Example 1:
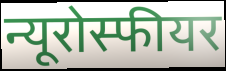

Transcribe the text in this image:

न्यूरोस्फीयर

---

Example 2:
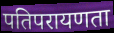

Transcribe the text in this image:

पतिपरायणता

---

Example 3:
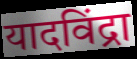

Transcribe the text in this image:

यादविंद्रा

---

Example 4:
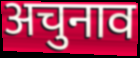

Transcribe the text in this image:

अचुनाव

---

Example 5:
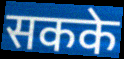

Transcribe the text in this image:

सकके